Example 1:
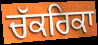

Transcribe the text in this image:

ਚੱਕਰਿਕਾ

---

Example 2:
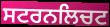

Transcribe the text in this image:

ਸਟਰਨਲਿਚਟ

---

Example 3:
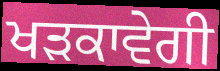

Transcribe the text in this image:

ਖੜਕਾਵੇਗੀ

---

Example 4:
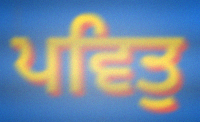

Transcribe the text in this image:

ਪਵਿਤੁ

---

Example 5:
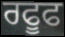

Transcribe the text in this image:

ਰਫੂਫ